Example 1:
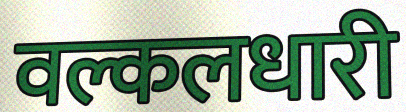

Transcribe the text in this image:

वल्कलधारी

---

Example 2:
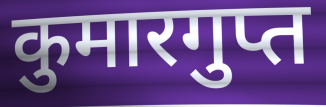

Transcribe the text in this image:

कुमारगुप्त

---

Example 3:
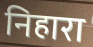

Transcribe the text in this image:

निहारा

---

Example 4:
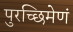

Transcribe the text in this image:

पुरच्छिमेणं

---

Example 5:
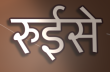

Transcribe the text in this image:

रुईसे